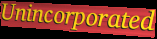
Unincorporated